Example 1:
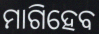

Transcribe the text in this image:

ମାଗିହେବ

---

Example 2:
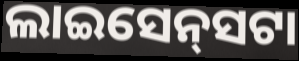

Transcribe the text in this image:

ଲାଇସେନ୍‍ସଟା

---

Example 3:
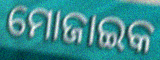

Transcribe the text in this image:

ମୋଜାଇକ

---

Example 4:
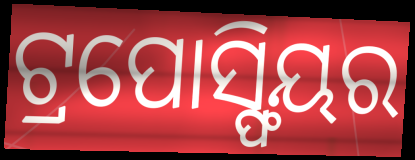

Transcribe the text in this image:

ଟ୍ରପୋସ୍ଫିୟର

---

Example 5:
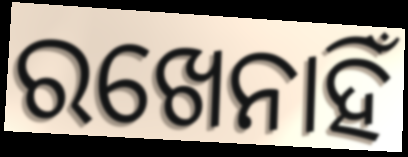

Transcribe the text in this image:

ରଖେନାହିଁ